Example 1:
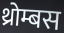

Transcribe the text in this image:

थ्रोम्बस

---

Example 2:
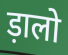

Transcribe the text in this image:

ड़ालो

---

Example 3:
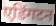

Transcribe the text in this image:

एडिंगटन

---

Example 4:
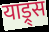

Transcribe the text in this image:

याड्र्स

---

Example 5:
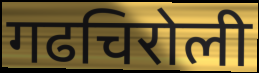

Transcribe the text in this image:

गढचिरोली